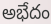
అభేదం